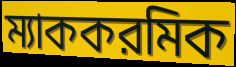
ম্যাককরমিক